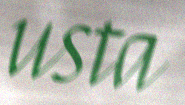
usta